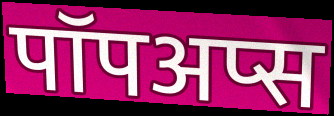
पॉपअप्स